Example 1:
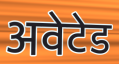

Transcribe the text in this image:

अवेटेड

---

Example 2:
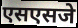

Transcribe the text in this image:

एसएसजे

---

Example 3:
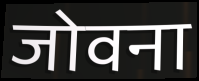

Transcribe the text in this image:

जोवना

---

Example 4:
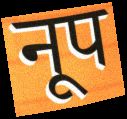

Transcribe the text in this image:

नूप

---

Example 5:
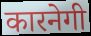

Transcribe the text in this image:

कारनेगी